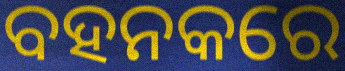
ବହନକରେ